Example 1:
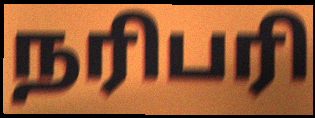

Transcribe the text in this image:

நரிபரி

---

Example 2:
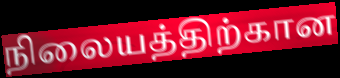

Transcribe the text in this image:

நிலையத்திற்கான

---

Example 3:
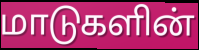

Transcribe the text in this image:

மாடுகளின்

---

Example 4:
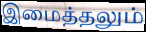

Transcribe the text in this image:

இமைத்தலும்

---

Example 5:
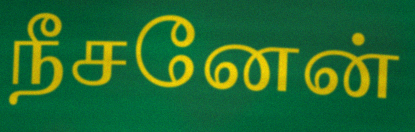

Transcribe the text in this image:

நீசனேன்